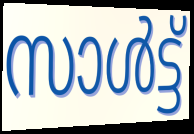
സാൾട്ട്